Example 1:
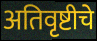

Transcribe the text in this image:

अतिवृष्टीचे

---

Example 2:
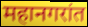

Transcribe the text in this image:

महानगरांत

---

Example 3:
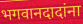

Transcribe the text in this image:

भगवानदादांना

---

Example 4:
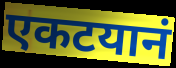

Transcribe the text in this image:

एकटयानं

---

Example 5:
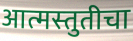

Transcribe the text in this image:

आत्मस्तुतीचा